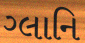
ગ્લાનિ